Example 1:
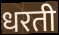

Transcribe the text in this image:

धरती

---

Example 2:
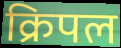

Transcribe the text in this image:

क्रिपल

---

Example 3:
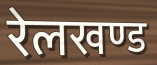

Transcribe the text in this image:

रेलखण्ड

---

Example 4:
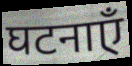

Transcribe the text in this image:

घटनाएँ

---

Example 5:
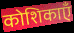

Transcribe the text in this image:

कोशिकाएँ